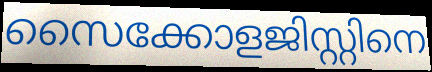
സൈക്കോളജിസ്റ്റിനെ